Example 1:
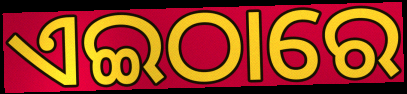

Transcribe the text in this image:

ଏଇଠାରେ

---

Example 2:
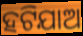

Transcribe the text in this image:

ହଟିଯାଅ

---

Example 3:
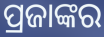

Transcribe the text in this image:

ପ୍ରଜାଙ୍କର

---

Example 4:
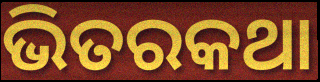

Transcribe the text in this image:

ଭିତରକଥା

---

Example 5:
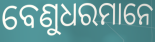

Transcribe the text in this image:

ବେଣୁଧରମାନେ